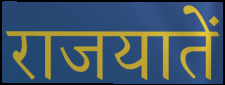
राजयातें